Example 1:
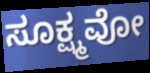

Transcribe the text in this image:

ಸೂಕ್ಷ್ಮವೋ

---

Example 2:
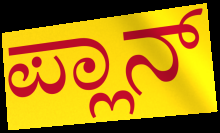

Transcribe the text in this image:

ಪ್ಲಾನ್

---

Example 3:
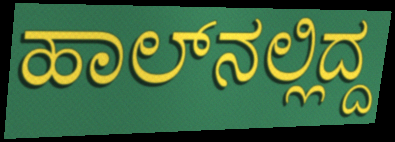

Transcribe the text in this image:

ಹಾಲ್‌ನಲ್ಲಿದ್ದ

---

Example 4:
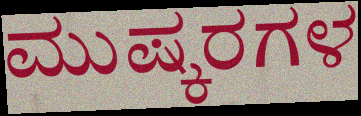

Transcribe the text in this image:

ಮುಷ್ಕರಗಳ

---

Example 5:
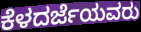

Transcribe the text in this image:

ಕೆಳದರ್ಜೆಯವರು